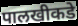
पालखीकडे